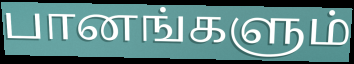
பானங்களும்